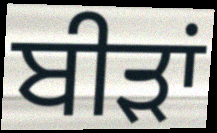
ਬੀੜਾਂ